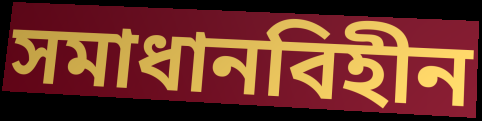
সমাধানবিহীন